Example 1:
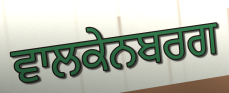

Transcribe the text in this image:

ਵਾਲਕੇਨਬਰਗ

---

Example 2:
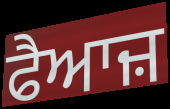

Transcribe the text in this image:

ਫੈਆਜ਼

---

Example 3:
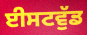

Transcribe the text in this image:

ਈਸਟਵੁੱਡ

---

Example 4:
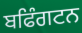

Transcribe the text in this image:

ਬਫਿੰਗਟਨ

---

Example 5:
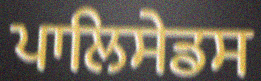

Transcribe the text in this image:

ਪਾਲਿਸੇਡਸ